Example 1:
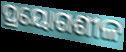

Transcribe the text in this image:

ପ୍ରୟୋଗଶୀଳ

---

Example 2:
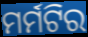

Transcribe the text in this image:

ମର୍ମଟିର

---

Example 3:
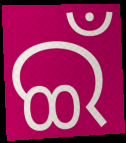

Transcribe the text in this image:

ଇଁ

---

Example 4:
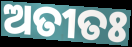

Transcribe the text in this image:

ଅତୀତଃ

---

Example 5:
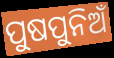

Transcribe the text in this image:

ପୁଷପୁନିଅଁ